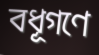
বধূগণে